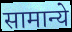
सामान्ये